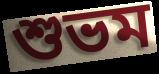
শুভম